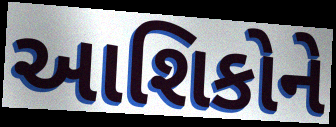
આશિકોને